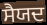
ਸੈਯਦ